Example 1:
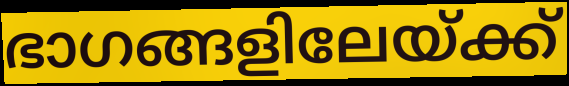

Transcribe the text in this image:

ഭാഗങ്ങളിലേയ്ക്ക്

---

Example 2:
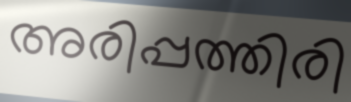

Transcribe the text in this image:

അരിപ്പത്തിരി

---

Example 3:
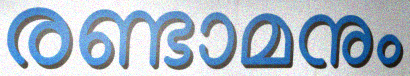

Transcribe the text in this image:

രണ്ടാമനും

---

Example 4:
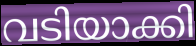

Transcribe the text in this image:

വടിയാക്കി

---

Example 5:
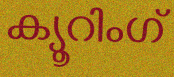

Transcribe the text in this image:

ക്യൂറിംഗ്